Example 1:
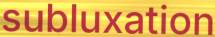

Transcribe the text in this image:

subluxation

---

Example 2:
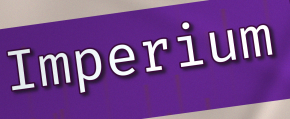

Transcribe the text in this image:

Imperium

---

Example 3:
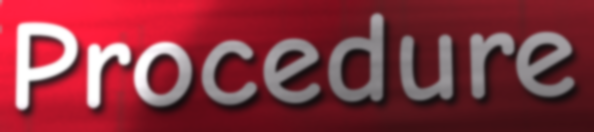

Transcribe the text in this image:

Procedure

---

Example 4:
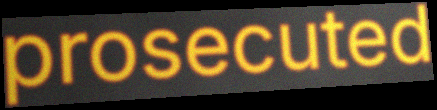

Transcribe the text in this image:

prosecuted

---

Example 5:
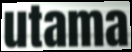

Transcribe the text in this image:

utama